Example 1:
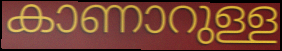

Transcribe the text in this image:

കാണാറുള്ള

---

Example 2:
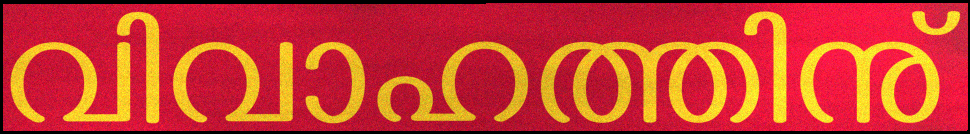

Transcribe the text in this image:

വിവാഹത്തിനു്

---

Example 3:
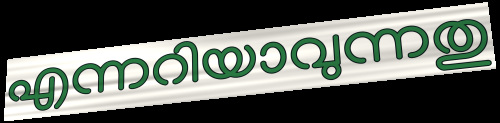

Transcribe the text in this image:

എന്നറിയാവുന്നതു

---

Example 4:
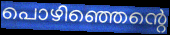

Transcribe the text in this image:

പൊഴിഞ്ഞെന്റെ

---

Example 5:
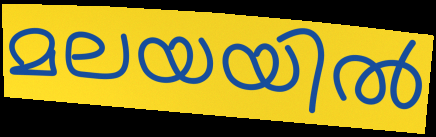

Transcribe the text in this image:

മലയയിൽ